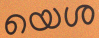
യെശ